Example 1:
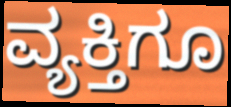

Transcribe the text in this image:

ವ್ಯಕ್ತಿಗೂ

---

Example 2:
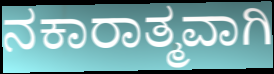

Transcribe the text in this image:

ನಕಾರಾತ್ಮವಾಗಿ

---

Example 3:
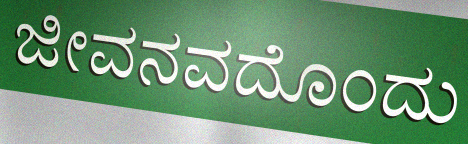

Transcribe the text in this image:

ಜೀವನವದೊಂದು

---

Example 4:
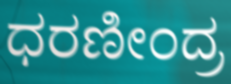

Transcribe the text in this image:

ಧರಣೀಂದ್ರ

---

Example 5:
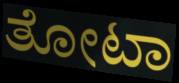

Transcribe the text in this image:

ತೋಟಾ